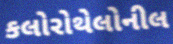
કલોરોથેલોનીલ